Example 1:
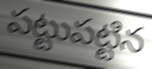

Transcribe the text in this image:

పట్టుపట్టిన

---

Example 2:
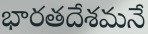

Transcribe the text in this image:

భారతదేశమనే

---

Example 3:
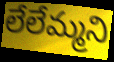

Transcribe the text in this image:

లేలేమ్మని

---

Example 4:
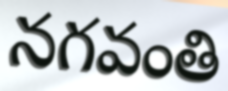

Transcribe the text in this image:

నగవంతి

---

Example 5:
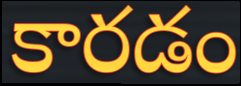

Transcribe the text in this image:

కారడం